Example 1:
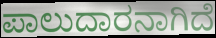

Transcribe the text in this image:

ಪಾಲುದಾರನಾಗಿದೆ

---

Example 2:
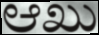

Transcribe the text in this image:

ಆಖು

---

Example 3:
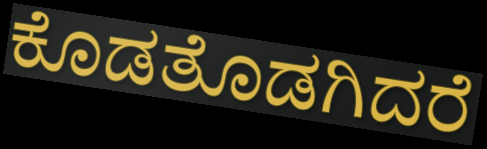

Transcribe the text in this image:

ಕೊಡತೊಡಗಿದರೆ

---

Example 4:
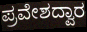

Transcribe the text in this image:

ಪ್ರವೇಶದ್ವಾರ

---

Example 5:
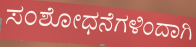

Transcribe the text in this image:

ಸಂಶೋಧನೆಗಳಿಂದಾಗಿ